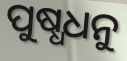
ପୁଷ୍ଧଧନୁ